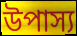
উপাস্য